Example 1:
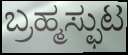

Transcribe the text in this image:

ಬ್ರಹ್ಮಸ್ಫುಟ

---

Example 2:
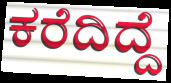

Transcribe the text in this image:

ಕರೆದಿದ್ದೆ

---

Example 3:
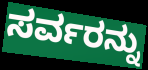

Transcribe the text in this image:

ಸರ್ವರನ್ನು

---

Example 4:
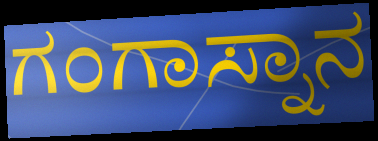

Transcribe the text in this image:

ಗಂಗಾಸ್ನಾನ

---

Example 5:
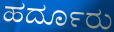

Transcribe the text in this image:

ಹರ್ದೂರು